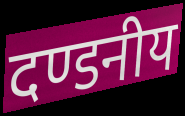
दण्डनीय